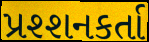
પ્રશ્શનકર્તા